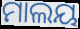
ମାଲୟ